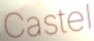
Castel